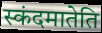
स्कंदमातेति